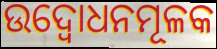
ଉଦ୍ବୋଧନମୂଳକ